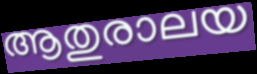
ആതുരാലയ